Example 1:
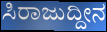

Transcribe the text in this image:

ಸಿರಾಜುದ್ದೀನ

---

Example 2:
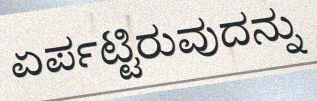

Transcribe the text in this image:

ಏರ್ಪಟ್ಟಿರುವುದನ್ನು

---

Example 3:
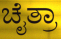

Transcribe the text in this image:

ಚೈತ್ರಾ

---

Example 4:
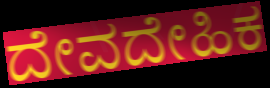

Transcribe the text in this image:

ದೇವದೇಹಿಕ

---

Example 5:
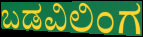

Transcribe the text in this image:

ಬಡವಿಲಿಂಗ